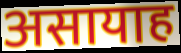
असायाह